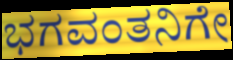
ಭಗವಂತನಿಗೇ